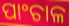
ପାଂଚାଳ